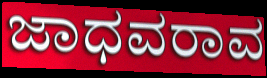
ಜಾಧವರಾವ